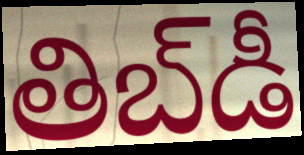
తిబ్‌డీ